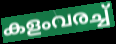
കളംവരച്ച്